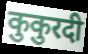
कुकुरदी